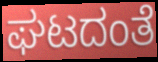
ಘಟದಂತೆ